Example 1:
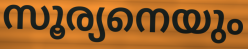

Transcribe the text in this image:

സൂര്യനെയും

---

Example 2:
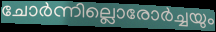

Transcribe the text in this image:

ചോർന്നില്ലൊരോർച്ചയും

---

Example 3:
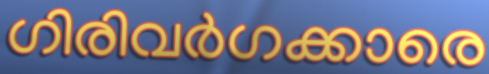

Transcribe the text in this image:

ഗിരിവർഗക്കാരെ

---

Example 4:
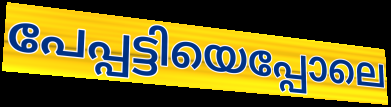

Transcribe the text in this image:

പേപ്പട്ടിയെപ്പോലെ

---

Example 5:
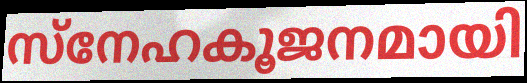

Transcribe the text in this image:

സ്നേഹകൂജനമായി